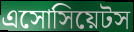
এসোসিয়েটস